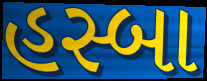
હસ્બા